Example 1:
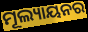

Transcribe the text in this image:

ମୂଲ୍ୟାୟନର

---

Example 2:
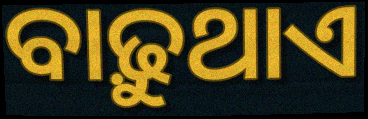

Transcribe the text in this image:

ବାଢ଼ୁଥାଏ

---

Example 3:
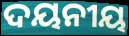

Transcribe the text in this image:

ଦୟନୀୟ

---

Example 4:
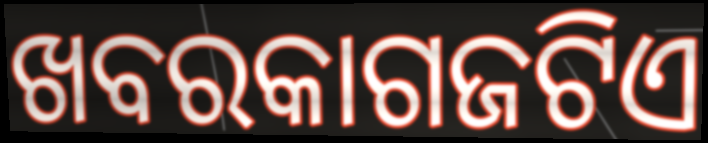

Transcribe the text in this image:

ଖବରକାଗଜଟିଏ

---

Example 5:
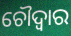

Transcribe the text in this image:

ଚୌଦ୍ବାର